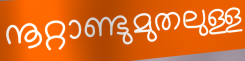
നൂറ്റാണ്ടുമുതലുള്ള